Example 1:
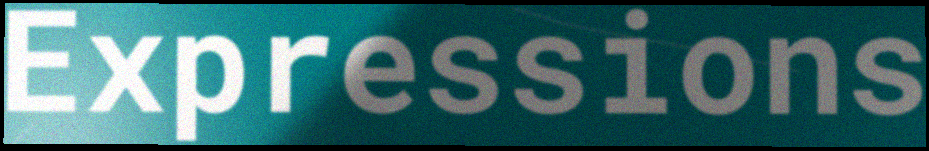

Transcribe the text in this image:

Expressions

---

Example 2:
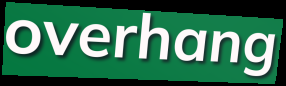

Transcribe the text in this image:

overhang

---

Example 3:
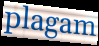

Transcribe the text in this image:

plagam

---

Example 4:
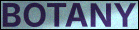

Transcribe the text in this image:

BOTANY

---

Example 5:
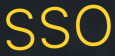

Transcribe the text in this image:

SSO